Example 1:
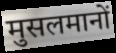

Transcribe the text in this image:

मुसलमानों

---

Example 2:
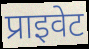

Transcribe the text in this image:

प्राइवेट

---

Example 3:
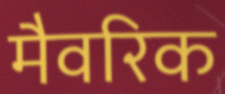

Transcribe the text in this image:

मैवरिक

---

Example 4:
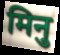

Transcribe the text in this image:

मिनु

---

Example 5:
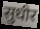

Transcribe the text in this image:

सुधीर